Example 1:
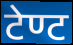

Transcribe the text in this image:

टेण्ट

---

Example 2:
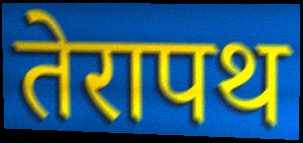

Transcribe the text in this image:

तेरापथ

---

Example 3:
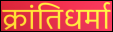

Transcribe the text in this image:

क्रांतिधर्मा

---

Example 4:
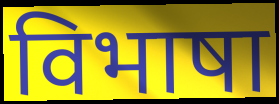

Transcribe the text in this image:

विभाषा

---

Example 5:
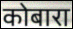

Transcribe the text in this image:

कोबारा